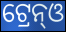
ଟ୍ରେନ୍ଓ